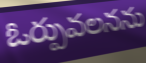
ఓర్పువలనను